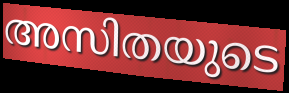
അസിതയുടെ